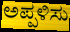
ಅಪ್ಪಳಿಸು